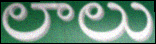
లాలు